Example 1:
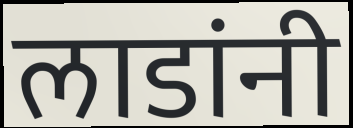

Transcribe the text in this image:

लाडांनी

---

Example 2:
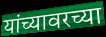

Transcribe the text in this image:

यांच्यावरच्या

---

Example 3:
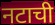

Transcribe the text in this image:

नटाची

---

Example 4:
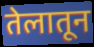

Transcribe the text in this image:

तेलातून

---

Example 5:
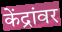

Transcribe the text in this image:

केंद्रांवर